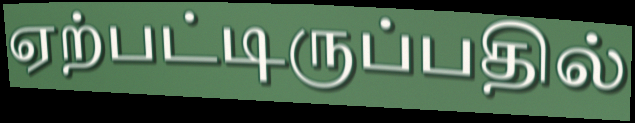
ஏற்பட்டிருப்பதில்